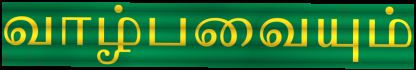
வாழ்பவையும்